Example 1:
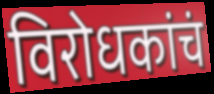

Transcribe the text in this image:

विरोधकांचं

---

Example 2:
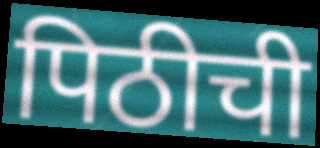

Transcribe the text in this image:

पिठीची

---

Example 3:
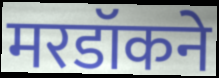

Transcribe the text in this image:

मरडॉकने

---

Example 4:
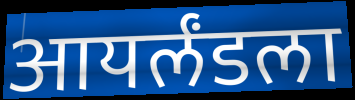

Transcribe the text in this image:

आयर्लंडला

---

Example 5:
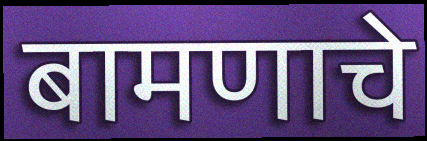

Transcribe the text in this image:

बामणाचे